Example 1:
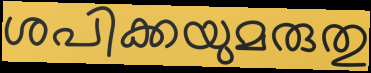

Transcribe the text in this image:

ശപിക്കയുമരുതു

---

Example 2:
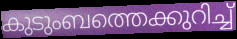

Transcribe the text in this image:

കുടുംബത്തെക്കുറിച്ച്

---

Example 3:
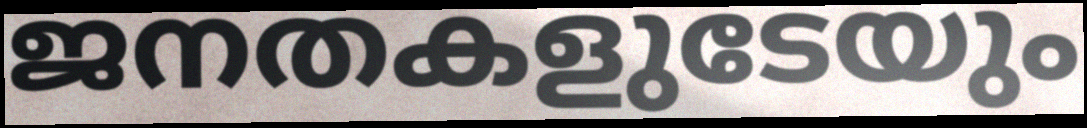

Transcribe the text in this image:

ജനതകളുടേയും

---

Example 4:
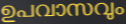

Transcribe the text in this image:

ഉപവാസവും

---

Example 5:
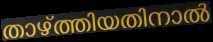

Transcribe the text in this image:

താഴ്ത്തിയതിനാൽ